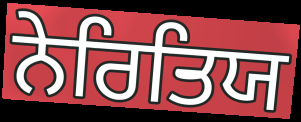
ਨੇਰਿਤਿਯ